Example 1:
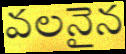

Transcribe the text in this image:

వలనైన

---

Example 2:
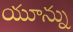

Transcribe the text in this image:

యూన్ను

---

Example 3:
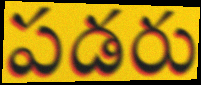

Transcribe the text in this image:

పడరు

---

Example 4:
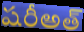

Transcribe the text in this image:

షరీఅత్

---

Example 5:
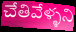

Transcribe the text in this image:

చేతివేళ్ళని